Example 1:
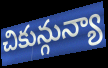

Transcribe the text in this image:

చికున్గున్యా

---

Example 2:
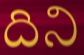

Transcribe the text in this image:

దిని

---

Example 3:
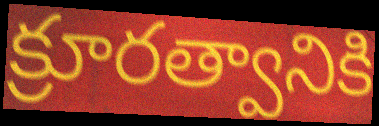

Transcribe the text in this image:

క్రూరత్వానికి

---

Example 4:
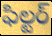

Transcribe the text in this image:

ఫిల్టర్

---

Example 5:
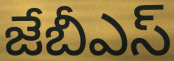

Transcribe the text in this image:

జేబీఎస్